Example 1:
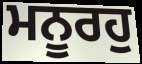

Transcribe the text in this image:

ਮਨੂਰਹੁ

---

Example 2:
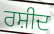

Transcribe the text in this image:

ਰਸ਼ੀਦ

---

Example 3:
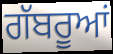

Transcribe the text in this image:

ਗੱਬਰੂਆਂ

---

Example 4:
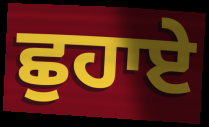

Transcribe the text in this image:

ਛੁਹਾਏ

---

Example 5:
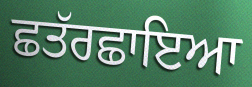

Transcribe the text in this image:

ਛਤੱਰਛਾਇਆ